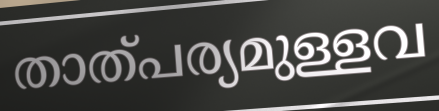
താത്പര്യമുള്ളവ